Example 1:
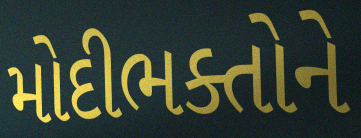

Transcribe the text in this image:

મોદીભક્તોને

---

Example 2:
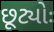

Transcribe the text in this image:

છૂટ્યોઃ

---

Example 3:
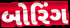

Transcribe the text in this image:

બોરિંગ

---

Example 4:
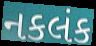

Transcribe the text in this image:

નકલંક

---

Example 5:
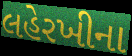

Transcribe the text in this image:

લહેરખીના